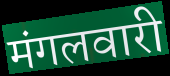
मंगलवारी